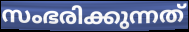
സംഭരിക്കുന്നത്